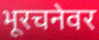
भूरचनेवर